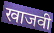
खाजवी